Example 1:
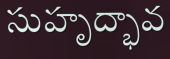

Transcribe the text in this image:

సుహృద్భావ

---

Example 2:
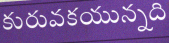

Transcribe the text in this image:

కురువకయున్నది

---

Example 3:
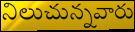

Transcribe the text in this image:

నిలుచున్నవారు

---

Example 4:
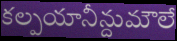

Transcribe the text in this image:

కల్పయానీన్దుమౌలే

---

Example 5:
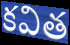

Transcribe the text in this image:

కవిత